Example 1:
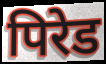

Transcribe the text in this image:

पिरेड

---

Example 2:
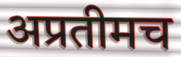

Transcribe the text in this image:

अप्रतीमच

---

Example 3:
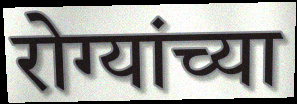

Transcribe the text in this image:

रोग्यांच्या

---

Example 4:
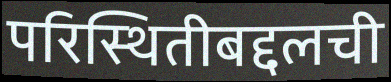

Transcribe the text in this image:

परिस्थितीबद्दलची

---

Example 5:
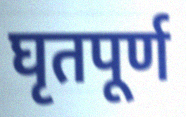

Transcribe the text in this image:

घृतपूर्ण